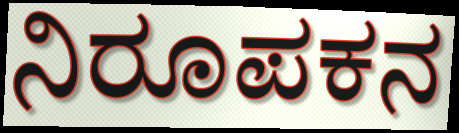
ನಿರೂಪಕನ